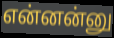
என்னன்னு